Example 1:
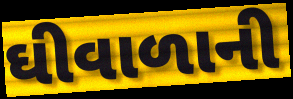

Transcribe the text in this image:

ઘીવાળાની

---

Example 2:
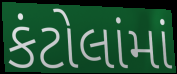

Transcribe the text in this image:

કંટોલાંમાં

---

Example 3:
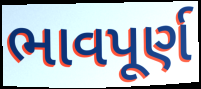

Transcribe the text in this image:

ભાવપૂર્ણ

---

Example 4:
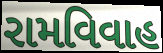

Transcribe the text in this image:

રામવિવાહ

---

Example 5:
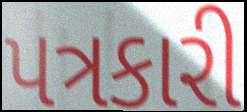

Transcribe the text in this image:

પત્રકારી